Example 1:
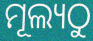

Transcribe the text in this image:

ମୂଲ୍ୟଠୁ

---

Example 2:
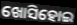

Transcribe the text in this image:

ଖୋସିହୋଇ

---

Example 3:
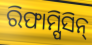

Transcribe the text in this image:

ରିଫାମ୍ପିସିନ୍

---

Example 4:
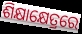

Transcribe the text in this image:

ଶିକ୍ଷାକ୍ଷେତ୍ରରେ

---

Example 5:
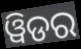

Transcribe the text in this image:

ୱିଡର